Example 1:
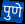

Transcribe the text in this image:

पुणे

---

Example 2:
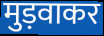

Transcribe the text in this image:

मुड़वाकर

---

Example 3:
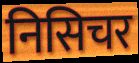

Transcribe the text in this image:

निसिचर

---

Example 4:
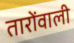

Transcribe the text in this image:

तारोंवाली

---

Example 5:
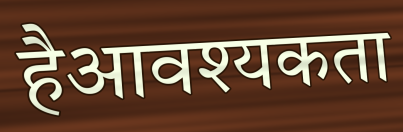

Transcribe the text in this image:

हैआवश्यकता